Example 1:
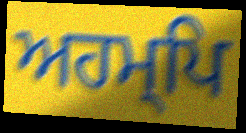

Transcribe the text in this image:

ਅਹਮ੍ਪਿ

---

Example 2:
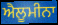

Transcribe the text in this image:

ਐਲੂਮੀਨਾ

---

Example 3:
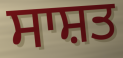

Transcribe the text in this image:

ਸਾਸ਼ਤ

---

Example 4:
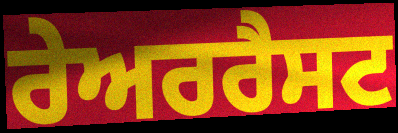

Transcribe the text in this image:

ਰੇਅਰਰੈਸਟ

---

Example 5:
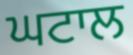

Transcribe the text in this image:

ਘਟਾਲ